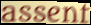
assent